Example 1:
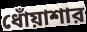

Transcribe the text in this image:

ধোঁয়াশার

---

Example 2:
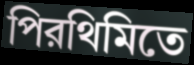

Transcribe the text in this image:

পিরথিমিতে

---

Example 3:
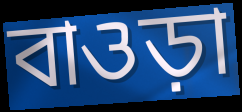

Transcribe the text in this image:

বাওড়া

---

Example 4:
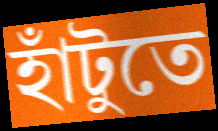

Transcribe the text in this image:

হাঁটুতে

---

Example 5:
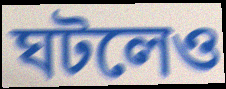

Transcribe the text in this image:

ঘটলেও